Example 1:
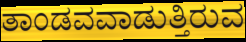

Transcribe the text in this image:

ತಾಂಡವವಾಡುತ್ತಿರುವ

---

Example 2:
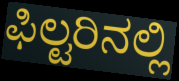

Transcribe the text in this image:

ಫಿಲ್ಟರಿನಲ್ಲಿ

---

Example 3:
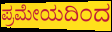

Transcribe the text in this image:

ಪ್ರಮೇಯದಿಂದ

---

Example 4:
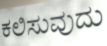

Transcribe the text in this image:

ಕಲಿಸುವುದು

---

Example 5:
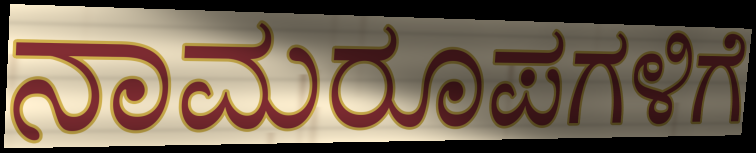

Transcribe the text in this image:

ನಾಮರೂಪಗಳಿಗೆ